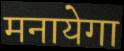
मनायेगा